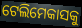
ଟେଲିମେକାସକୁ